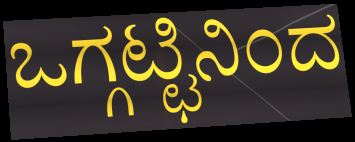
ಒಗ್ಗಟ್ಟಿನಿಂದ